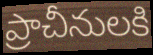
ప్రాచీనులకి